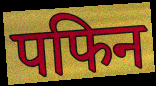
पफिन